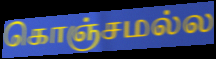
கொஞ்சமல்ல